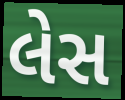
લેસ